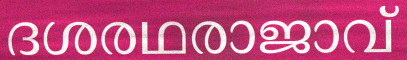
ദശരഥരാജാവ്